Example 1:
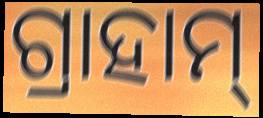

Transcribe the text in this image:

ଗ୍ରାହାମ୍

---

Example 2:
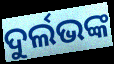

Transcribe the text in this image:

ଦୁର୍ଲଭଙ୍କ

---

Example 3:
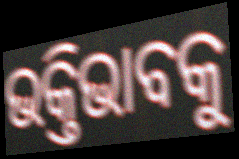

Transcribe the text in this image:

ଭକ୍ତିଭାବକୁ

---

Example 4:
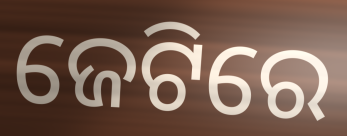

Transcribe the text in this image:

ଜେଟିରେ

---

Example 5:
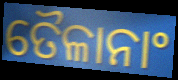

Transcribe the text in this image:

ତୈଳାନାଂ